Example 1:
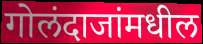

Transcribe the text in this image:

गोलंदाजांमधील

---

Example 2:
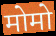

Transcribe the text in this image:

मोमो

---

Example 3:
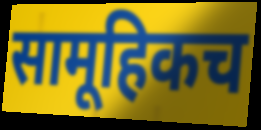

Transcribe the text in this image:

सामूहिकच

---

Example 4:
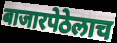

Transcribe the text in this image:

बाजारपेठेलाच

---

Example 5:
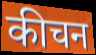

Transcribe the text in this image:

कीचन